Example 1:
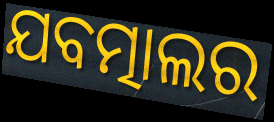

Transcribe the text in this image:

ଯବତ୍ମାଲର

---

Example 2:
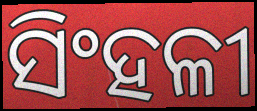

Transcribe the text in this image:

ସିଂହଳୀ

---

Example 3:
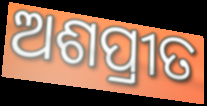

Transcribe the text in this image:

ଅଶପ୍ରୀତ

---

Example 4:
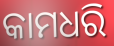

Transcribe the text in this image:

କାମଧରି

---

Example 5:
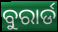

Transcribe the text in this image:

ବୁରାର୍ଡ